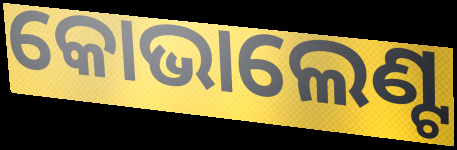
କୋଭାଲେଣ୍ଟ